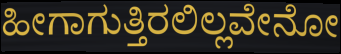
ಹೀಗಾಗುತ್ತಿರಲಿಲ್ಲವೇನೋ